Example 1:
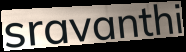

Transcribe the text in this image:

sravanthi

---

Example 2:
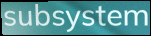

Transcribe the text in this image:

subsystem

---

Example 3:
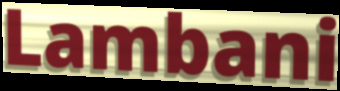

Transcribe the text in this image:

Lambani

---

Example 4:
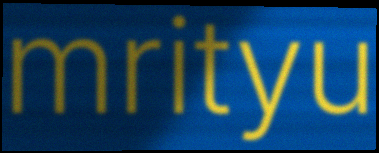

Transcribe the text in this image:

mrityu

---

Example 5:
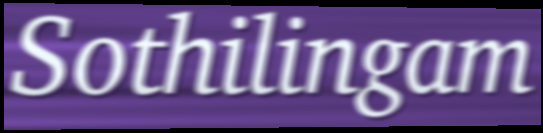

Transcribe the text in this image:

Sothilingam